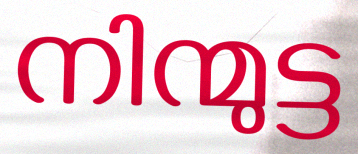
നിന്മുട്ട